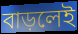
বাড়লেই